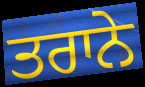
ਤਰਾਨੇ